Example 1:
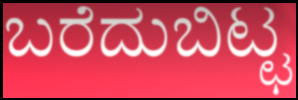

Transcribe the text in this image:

ಬರೆದುಬಿಟ್ಟ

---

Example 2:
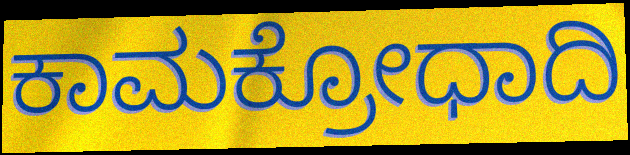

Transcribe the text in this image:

ಕಾಮಕ್ರೋಧಾದಿ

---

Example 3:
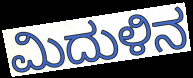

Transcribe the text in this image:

ಮಿದುಳಿನ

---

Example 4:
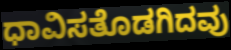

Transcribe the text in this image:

ಧಾವಿಸತೊಡಗಿದವು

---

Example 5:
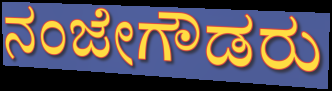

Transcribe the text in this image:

ನಂಜೇಗೌಡರು